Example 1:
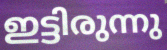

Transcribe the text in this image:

ഇട്ടിരുന്നു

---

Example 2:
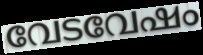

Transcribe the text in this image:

വേടവേഷം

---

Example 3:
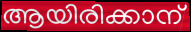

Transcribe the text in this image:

ആയിരിക്കാന്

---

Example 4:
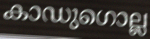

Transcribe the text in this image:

കാഡുഗൊല്ല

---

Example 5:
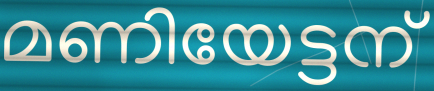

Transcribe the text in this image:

മണിയേട്ടന്